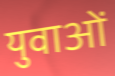
युवाओं